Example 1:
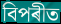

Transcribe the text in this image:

বিপৰীত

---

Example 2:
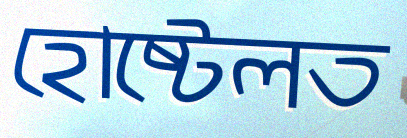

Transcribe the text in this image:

হোষ্টেলত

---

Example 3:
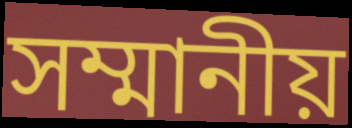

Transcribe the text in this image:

সম্মানীয়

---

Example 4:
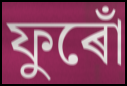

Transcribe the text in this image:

ফুৰোঁ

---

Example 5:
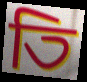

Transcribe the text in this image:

তি